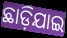
ଛାଡ଼ିଯାଇ